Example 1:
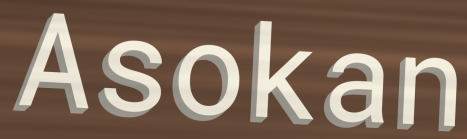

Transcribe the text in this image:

Asokan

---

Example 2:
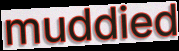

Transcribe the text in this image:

muddied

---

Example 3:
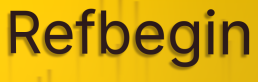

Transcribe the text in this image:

Refbegin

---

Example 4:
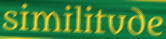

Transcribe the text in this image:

similitude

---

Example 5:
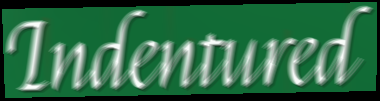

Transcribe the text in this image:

Indentured